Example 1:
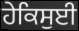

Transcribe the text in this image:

ਹੇਕਿਸੁਈ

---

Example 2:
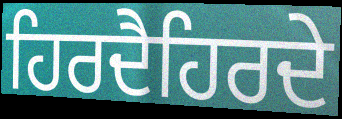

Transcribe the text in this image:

ਹਿਰਦੈਹਿਰਦੇ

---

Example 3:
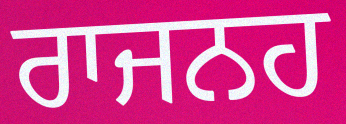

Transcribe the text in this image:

ਰਾਜਨਹ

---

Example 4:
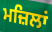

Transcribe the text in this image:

ਮਜ਼ਿਲਾਂ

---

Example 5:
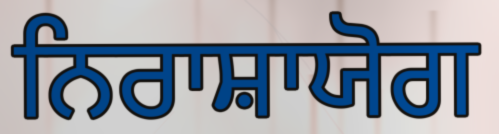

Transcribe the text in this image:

ਨਿਰਾਸ਼ਾਯੋਗ